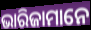
ଭାରିଜାମାନେ